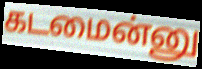
கடமைன்னு